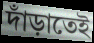
দাঁড়াতেই